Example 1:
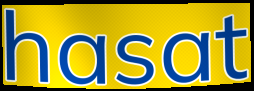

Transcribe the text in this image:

hasat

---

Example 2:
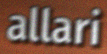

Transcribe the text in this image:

allari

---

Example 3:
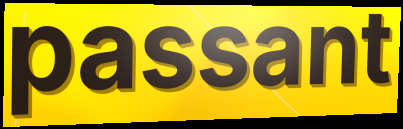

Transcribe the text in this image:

passant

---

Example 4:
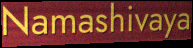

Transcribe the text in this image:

Namashivaya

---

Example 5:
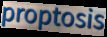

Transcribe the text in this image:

proptosis